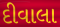
દીવાલા